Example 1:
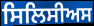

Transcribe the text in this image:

ਸਿਲਿਸੀਅਸ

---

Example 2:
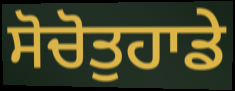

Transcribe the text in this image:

ਸੋਚੋਤੁਹਾਡੇ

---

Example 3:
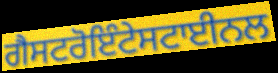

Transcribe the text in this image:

ਗੈਸਟਰੋਇੰਟੇਸਟਾਈਨਲ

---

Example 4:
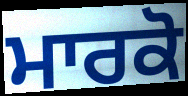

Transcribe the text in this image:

ਮਾਰਕੋ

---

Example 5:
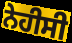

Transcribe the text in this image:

ਨੇਹੀਸੀ